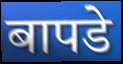
बापडे